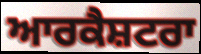
ਆਰਕੈਸ਼ਟਰਾ